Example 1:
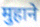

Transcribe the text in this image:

मुहाने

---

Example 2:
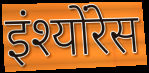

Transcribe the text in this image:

इंश्योंरेस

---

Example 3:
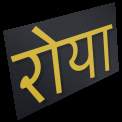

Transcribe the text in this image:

रोया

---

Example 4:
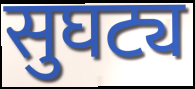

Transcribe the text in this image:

सुघट्य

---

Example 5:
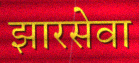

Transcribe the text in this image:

झारसेवा